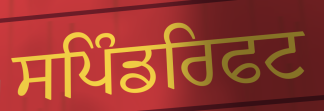
ਸਪਿੰਡਰਿਫਟ